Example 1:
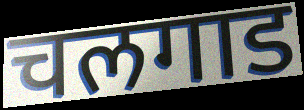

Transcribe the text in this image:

चलगाड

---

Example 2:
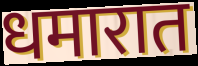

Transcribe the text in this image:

धमारात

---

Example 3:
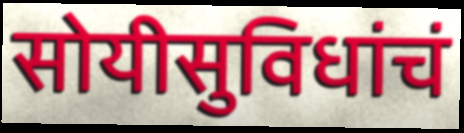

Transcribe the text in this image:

सोयीसुविधांचं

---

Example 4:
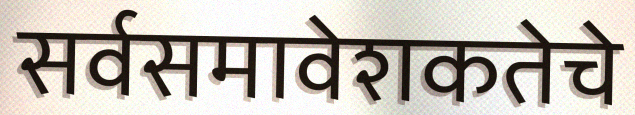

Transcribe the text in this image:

सर्वसमावेशकतेचे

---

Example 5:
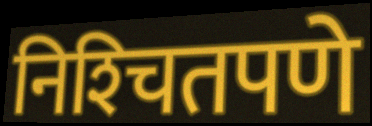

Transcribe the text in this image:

निश्‍चितपणे